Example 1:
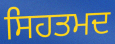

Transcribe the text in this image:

ਸਿਹਤਮਦ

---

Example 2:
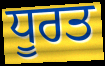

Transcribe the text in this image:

ਧੂਰਤ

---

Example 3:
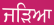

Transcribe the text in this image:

ਜੜਿਆ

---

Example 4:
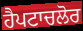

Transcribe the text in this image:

ਹੈਪਟਾਚਲੋਰ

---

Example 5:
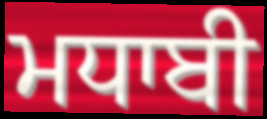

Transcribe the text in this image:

ਮਧਾਬੀ